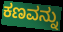
ಕಣವನ್ನು